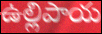
ఉల్లిపాయ